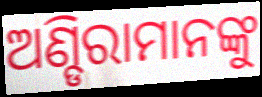
ଅଣ୍ଡିରାମାନଙ୍କୁ